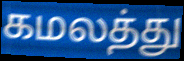
கமலத்து